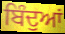
ਬਿੰਦੁਆਂ